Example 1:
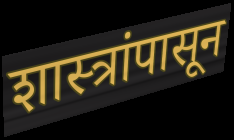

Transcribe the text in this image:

शास्त्रांपासून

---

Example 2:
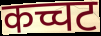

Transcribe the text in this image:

कच्चट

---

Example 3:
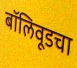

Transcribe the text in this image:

बॉलिवूडचा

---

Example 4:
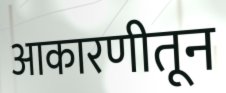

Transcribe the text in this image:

आकारणीतून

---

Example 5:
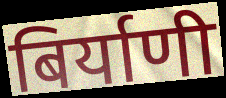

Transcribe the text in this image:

बिर्याणी